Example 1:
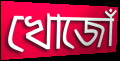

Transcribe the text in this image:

খোজোঁ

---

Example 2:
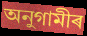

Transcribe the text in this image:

অনুগামীৰ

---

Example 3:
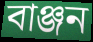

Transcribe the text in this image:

বাঞ্জন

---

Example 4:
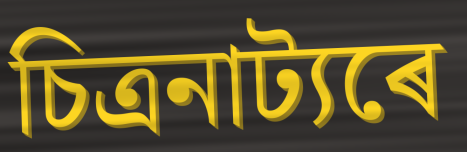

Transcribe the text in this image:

চিত্ৰনাট্যৰে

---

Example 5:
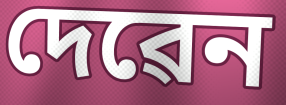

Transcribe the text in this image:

দেৱেন